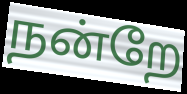
நன்றே